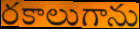
రకాలుగాను